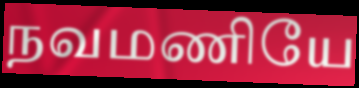
நவமணியே